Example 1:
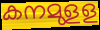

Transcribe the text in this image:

കനമുളള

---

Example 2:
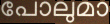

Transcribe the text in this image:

പോലുമാ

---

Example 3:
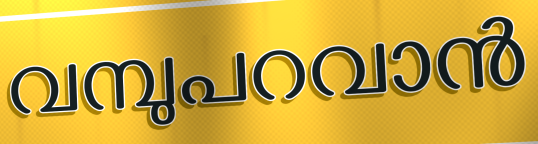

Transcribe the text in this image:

വമ്പുപറവാൻ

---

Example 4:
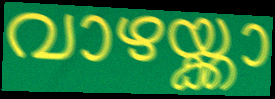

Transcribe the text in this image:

വാഴയ്ക്കാ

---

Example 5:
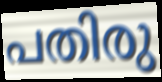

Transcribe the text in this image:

പതിരു